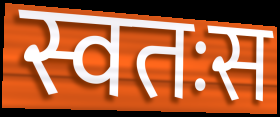
स्वतःस